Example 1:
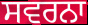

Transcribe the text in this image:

ਸਵਰਨਾ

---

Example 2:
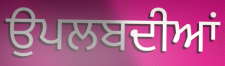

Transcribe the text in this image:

ਉਪਲਬਦੀਆਂ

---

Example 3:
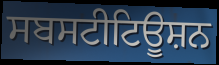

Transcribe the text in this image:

ਸਬਸਟੀਟਿਊਸ਼ਨ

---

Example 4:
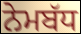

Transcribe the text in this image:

ਨੇਮਬੱਧ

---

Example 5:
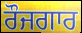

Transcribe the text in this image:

ਰੌਜਗਾਰ